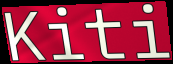
Kiti